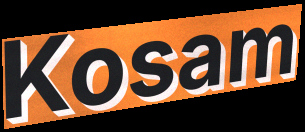
Kosam